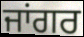
ਜਾਂਗਰ